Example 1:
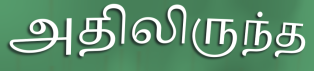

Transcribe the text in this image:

அதிலிருந்த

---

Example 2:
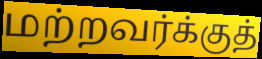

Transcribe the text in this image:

மற்றவர்க்குத்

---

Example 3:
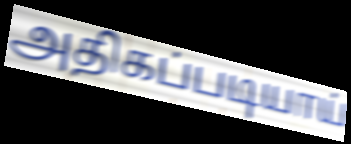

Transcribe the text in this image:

அதிகப்படியாய்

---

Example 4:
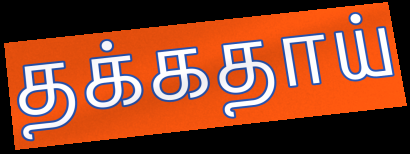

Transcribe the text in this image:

தக்கதாய்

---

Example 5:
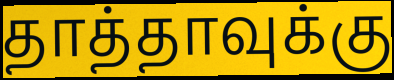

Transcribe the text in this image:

தாத்தாவுக்கு